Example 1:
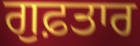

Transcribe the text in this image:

ਗੁਫ਼ਤਾਰ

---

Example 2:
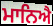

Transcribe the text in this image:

ਮਾਨਿਐ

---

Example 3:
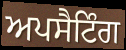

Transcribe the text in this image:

ਅਪਸੈਟਿੰਗ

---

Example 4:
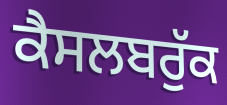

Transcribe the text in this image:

ਕੈਸਲਬਰੁੱਕ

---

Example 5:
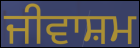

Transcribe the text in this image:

ਜੀਵਾਸ਼ਮ